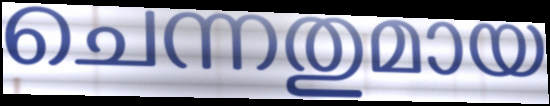
ചെന്നതുമായ